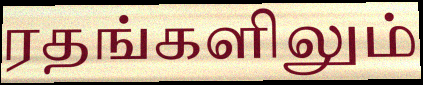
ரதங்களிலும்